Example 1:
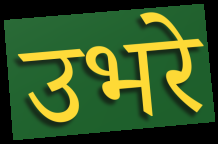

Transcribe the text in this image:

उभरे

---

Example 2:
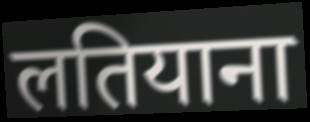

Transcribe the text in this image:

लतियाना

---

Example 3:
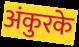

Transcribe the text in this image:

अंकुरके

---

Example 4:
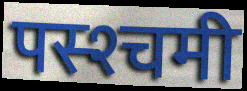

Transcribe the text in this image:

पस्श्चमी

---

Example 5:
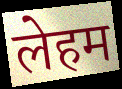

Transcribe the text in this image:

लेहम